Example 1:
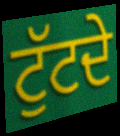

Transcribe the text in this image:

ਟੁੱਟਦੇ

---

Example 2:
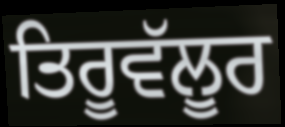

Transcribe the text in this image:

ਤਿਰੂਵੱਲੂਰ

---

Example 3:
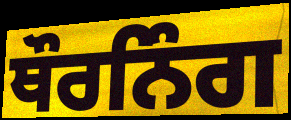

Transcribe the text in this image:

ਥੌਰਨਿੰਗ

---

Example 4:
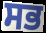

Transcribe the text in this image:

ਸਭ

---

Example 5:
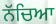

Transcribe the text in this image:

ਨੱਚਿਆ